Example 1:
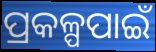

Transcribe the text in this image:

ପ୍ରକଳ୍ପପାଇଁ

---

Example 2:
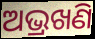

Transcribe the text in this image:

ଅଭ୍ରଖଣି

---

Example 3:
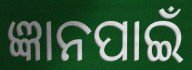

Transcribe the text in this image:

ଜ୍ଞାନପାଇଁ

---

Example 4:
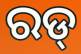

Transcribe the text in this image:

ରଡ୍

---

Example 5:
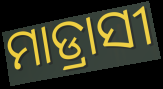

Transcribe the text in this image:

ମାଡ୍ରାସୀ